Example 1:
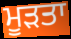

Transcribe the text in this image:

ਮੂੜਤਾ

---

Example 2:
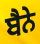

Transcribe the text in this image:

ਬੈਨੇ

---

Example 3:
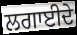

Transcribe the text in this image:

ਲਗਾਈਦੇ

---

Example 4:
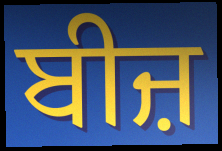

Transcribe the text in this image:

ਬੀਜ਼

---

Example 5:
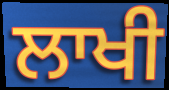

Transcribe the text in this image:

ਲਾਖੀ